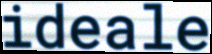
ideale